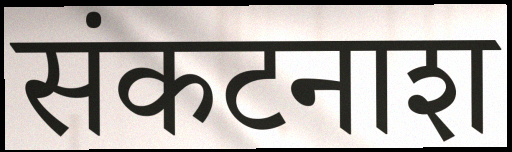
संकटनाश